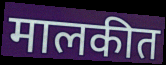
मालकीत